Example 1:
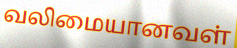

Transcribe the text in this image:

வலிமையானவள்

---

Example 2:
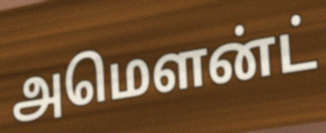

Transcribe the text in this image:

அமௌன்ட்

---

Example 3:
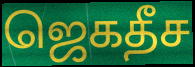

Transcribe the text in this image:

ஜெகதீச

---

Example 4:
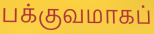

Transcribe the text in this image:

பக்குவமாகப்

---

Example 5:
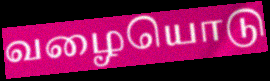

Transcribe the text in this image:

வழையொடு